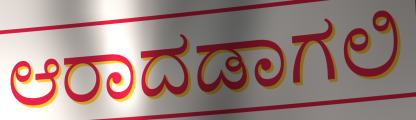
ಆರಾದಡಾಗಲಿ